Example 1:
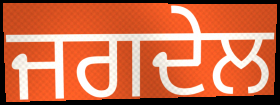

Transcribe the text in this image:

ਜਗਦੇਲ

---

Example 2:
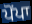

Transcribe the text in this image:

ਪੋਂਪਾ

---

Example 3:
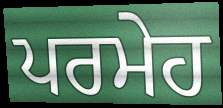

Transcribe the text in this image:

ਪਰਮੇਹ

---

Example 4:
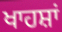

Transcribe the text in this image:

ਖਾਹਸ਼ਾਂ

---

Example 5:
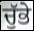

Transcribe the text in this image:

ਚੁੱਭੇ